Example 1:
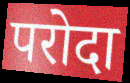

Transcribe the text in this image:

परोदा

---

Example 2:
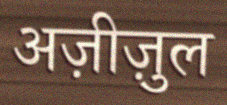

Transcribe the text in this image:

अज़ीज़ुल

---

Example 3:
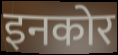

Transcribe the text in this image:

इनकोर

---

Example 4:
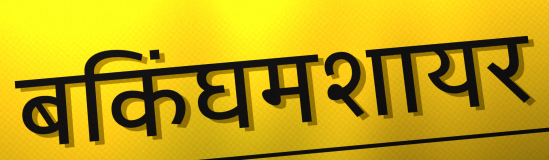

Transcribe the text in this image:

बकिंघमशायर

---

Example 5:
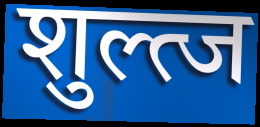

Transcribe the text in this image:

शुल्त्ज